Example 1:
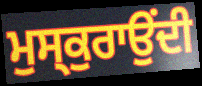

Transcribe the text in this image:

ਮੁਸ੍ਕੁਰਾਉਂਦੀ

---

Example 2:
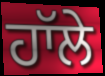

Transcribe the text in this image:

ਹਾੱਲੇ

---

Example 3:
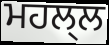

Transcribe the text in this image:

ਮਹਲ੍ਲ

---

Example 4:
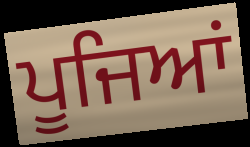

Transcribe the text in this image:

ਪੂਜਿਆਂ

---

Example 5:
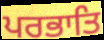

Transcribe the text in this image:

ਪਰਭਾਤਿ